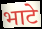
भाटे